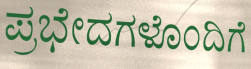
ಪ್ರಭೇದಗಳೊಂದಿಗೆ